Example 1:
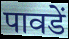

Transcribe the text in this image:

पावडें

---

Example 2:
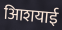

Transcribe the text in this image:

आिशयाई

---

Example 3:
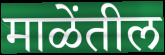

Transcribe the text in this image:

माळेंतील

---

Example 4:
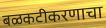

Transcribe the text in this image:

बळकटीकरणाचा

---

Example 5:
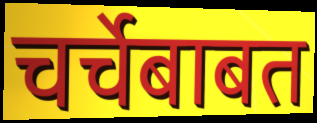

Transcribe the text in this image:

चर्चेबाबत